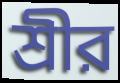
শ্রীর